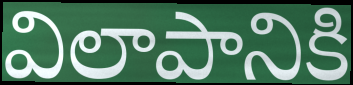
విలాపానికి